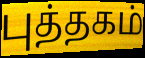
புத்தகம்